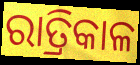
ରାତ୍ରିକାଳ